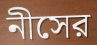
নীসের